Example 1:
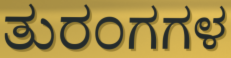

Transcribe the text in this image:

ತುರಂಗಗಳ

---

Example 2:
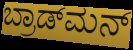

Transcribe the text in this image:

ಬ್ರಾಡ್‌ಮನ್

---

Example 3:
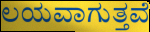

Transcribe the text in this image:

ಲಯವಾಗುತ್ತವೆ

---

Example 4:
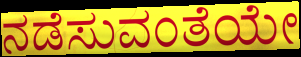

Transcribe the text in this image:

ನಡೆಸುವಂತೆಯೇ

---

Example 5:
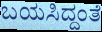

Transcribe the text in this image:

ಬಯಸಿದ್ದಂತೆ